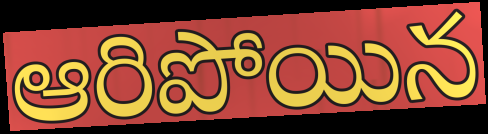
ఆరిపోయిన